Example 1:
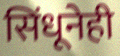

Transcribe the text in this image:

सिंधूनेही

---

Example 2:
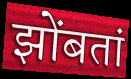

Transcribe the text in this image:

झोंबतां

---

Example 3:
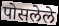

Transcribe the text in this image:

पोसलेले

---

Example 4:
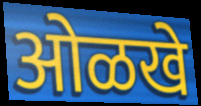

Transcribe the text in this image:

ओळखे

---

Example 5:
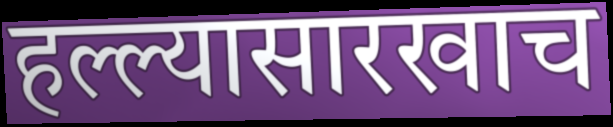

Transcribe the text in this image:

हल्ल्यासारखाच